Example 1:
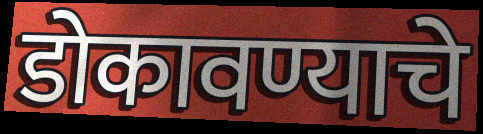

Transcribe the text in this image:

डोकावण्याचे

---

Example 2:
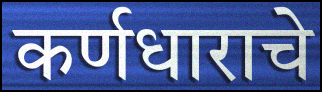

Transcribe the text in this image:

कर्णधाराचे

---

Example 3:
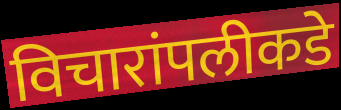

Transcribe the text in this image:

विचारांपलीकडे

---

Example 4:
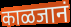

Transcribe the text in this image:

काळजानं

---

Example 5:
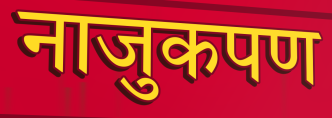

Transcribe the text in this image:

नाजुकपण